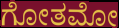
ಗೋತಮೋ